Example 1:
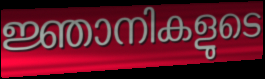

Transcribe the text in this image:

ജ്ഞാനികളുടെ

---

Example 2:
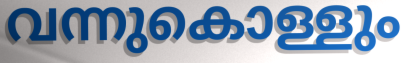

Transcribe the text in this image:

വന്നുകൊള്ളും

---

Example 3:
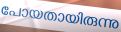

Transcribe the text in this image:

പോയതായിരുന്നു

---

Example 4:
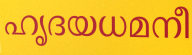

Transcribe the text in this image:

ഹൃദയധമനീ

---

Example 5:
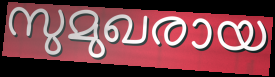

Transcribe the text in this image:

സുമുഖരായ